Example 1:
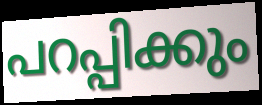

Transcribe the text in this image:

പറപ്പിക്കും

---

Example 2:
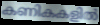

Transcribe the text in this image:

കണികകളിൽ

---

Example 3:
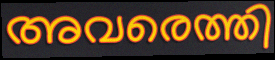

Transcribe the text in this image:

അവരെത്തി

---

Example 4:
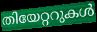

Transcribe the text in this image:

തിയേറ്ററുകൾ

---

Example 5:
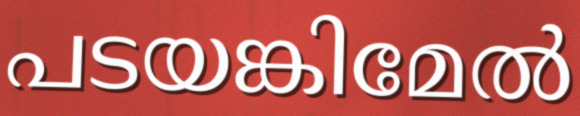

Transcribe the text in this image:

പടയങ്കിമേൽ